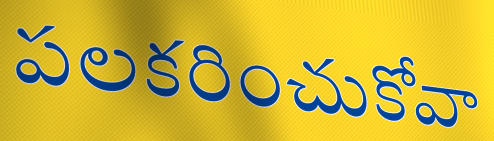
పలకరించుకోవా